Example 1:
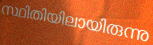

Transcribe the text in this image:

സ്ഥിതിയിലായിരുന്നു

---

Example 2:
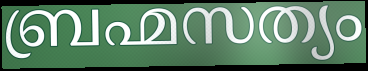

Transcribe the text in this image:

ബ്രഹ്മസത്യം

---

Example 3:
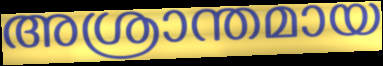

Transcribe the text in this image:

അശ്രാന്തമായ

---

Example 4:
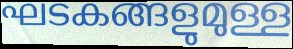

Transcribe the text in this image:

ഘടകങ്ങളുമുള്ള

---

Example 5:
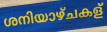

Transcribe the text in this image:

ശനിയാഴ്ചകള്